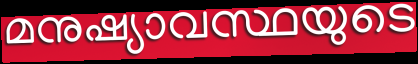
മനുഷ്യാവസ്ഥയുടെ